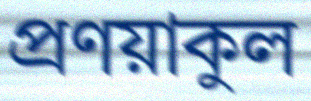
প্রণয়াকুল